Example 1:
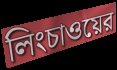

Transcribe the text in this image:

লিংচাওয়ের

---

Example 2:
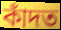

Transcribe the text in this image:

কাঁদত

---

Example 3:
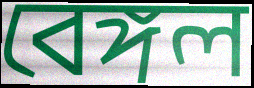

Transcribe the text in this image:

বেঙ্গল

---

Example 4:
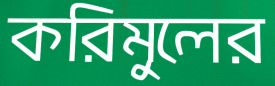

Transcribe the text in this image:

করিমুলের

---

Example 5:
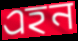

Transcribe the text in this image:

এহন